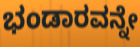
ಭಂಡಾರವನ್ನೇ